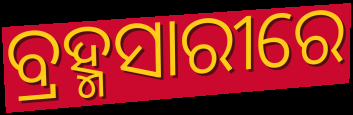
ବ୍ରହ୍ମସାରୀରେ